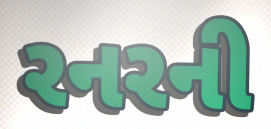
રનરની